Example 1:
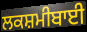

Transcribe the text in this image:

ਲਕਸ਼ਮੀਬਾਈ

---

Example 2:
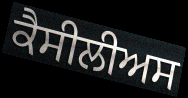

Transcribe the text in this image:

ਕੈਸੀਲੀਅਸ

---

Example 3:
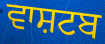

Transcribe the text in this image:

ਵਾਸ਼ਟਬ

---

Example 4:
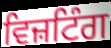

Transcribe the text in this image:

ਵਿਜ਼ਟਿੰਗ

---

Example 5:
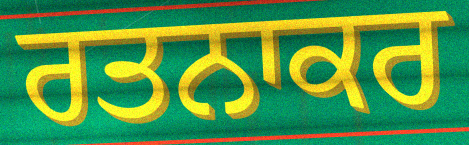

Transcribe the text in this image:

ਰਤਨਾਕਰ